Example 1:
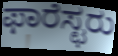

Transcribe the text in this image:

ಫಾರೆಸ್ಟರು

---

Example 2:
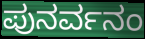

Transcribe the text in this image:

ಪುನರ್ವನಂ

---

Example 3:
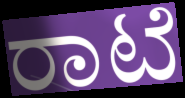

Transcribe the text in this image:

ರಾಟೆ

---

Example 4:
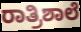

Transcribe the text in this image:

ರಾತ್ರಿಶಾಲೆ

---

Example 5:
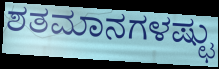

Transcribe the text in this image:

ಶತಮಾನಗಳಷ್ಟು